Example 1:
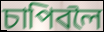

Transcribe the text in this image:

চাপিবলৈ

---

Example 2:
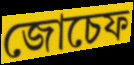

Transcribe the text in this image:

জোচেফ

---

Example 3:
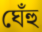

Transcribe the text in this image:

ঘেঁহু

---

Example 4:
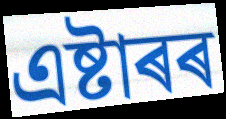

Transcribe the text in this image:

এষ্টাৰৰ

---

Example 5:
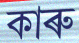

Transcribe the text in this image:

কাৰু